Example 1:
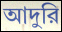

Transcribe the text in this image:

আদুরি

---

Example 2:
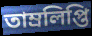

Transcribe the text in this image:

তাম্রলিপ্তি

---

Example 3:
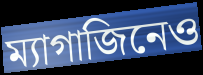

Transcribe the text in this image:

ম্যাগাজিনেও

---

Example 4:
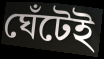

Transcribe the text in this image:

ঘেঁটেই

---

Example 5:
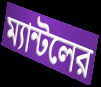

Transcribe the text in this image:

ম্যান্টলের